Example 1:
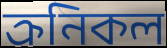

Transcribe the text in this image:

ক্রনিকল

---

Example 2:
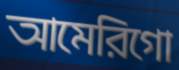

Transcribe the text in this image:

আমেরিগো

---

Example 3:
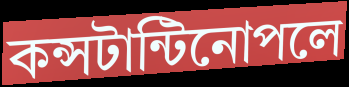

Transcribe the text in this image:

কন্সটান্টিনোপলে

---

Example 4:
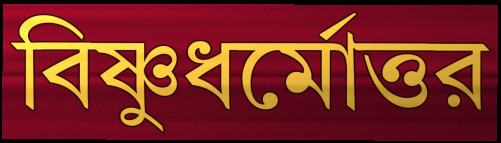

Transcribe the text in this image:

বিষ্ণুধর্মোত্তর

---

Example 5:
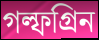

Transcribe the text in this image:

গল্ফগ্রিন